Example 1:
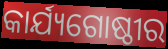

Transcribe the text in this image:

କାର୍ଯ୍ୟଗୋଷ୍ଠୀର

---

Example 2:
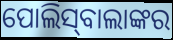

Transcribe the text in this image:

ପୋଲିସ୍‌ବାଲାଙ୍କର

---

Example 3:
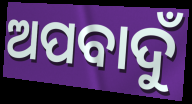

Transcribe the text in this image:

ଅପବାଦୁଁ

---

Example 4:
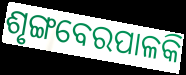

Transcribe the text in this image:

ଶୃଙ୍ଗବେରପାଳକି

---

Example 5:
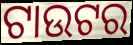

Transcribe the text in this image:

ଟାଉଟର